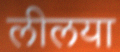
लीलया